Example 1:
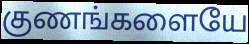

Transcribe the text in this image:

குணங்களையே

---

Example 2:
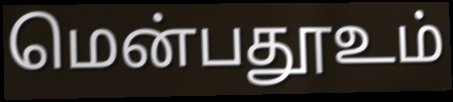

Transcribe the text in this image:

மென்பதூஉம்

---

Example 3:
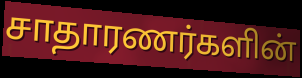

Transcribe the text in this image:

சாதாரணர்களின்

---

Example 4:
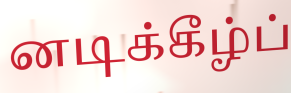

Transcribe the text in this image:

னடிக்கீழ்ப்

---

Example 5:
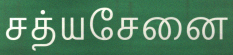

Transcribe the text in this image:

சத்யசேனை